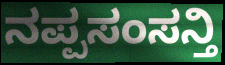
ನಪ್ಪಸಂಸನ್ತಿ